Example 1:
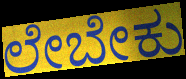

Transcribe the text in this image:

ಲೇಬೇಕು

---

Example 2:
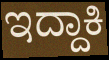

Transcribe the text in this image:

ಇದ್ದಾಕಿ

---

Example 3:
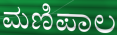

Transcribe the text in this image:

ಮಣಿಪಾಲ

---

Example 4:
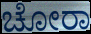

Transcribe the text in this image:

ಚೋರಾ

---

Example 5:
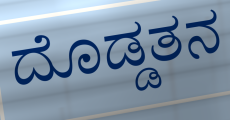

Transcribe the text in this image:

ದೊಡ್ಡತನ